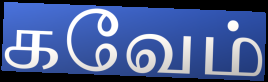
கவேம்